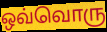
ஒவ்வொரு